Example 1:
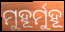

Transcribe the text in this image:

ମୁହୂର୍ମୁହୂ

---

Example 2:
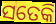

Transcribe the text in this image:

ସତେକି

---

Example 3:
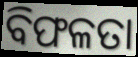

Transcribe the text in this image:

ବିଫଳତା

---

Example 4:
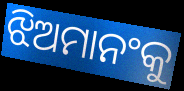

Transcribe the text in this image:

ଝିଅମାନଂକୁ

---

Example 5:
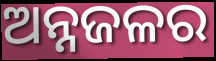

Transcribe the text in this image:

ଅନ୍ନଜଳର